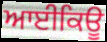
ਆਈਕਿਊ